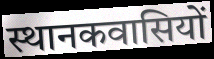
स्थानकवासियों